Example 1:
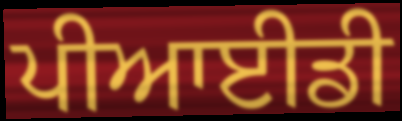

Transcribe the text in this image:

ਪੀਆਈਡੀ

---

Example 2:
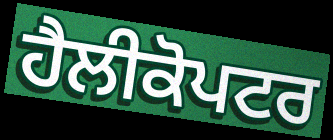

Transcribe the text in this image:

ਹੈਲੀਕੋਪਟਰ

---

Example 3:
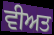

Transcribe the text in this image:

ਵੀਅਤ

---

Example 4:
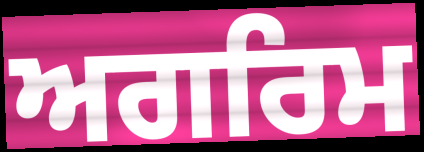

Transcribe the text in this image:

ਅਗਰਿਮ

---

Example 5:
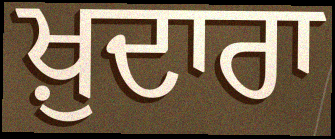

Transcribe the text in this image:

ਖ਼ੁਦਾਰਾ